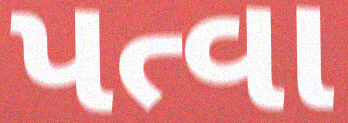
પત્વા